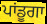
ਪਾਂਡੂਗਾ